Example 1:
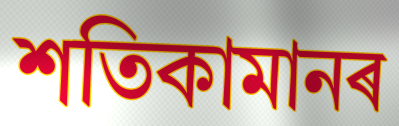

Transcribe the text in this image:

শতিকামানৰ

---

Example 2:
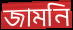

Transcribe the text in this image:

জামনি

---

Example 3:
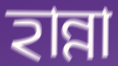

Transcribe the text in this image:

হান্না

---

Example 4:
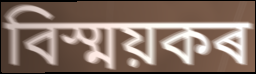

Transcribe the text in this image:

বিস্ময়কৰ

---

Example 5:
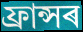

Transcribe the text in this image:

ফ্ৰান্সৰ